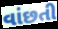
વાંછતી